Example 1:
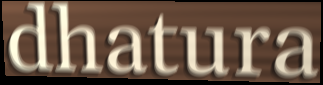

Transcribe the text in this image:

dhatura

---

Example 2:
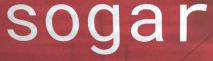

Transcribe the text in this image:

sogar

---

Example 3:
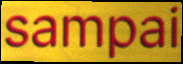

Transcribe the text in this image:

sampai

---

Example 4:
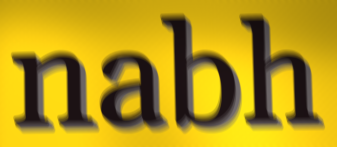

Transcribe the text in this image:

nabh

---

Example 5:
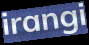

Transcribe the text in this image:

irangi